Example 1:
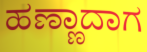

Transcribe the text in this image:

ಹಣ್ಣಾದಾಗ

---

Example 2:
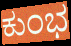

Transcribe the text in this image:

ಕುಂಭ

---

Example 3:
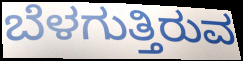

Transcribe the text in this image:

ಬೆಳಗುತ್ತಿರುವ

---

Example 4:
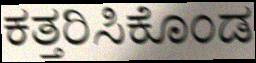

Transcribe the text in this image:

ಕತ್ತರಿಸಿಕೊಂಡ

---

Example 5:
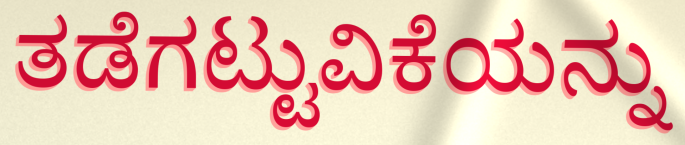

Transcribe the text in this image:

ತಡೆಗಟ್ಟುವಿಕೆಯನ್ನು